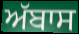
ਅੱਬਾਸ